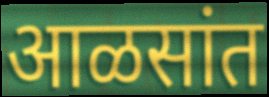
आळसांत